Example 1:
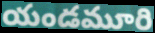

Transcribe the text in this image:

యండమూరి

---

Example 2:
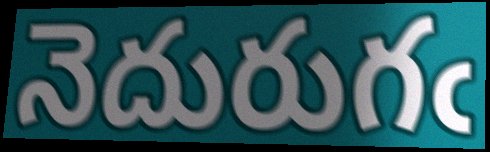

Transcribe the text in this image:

నెదురుగఁ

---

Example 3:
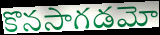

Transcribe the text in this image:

కొనసాగడమో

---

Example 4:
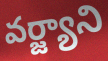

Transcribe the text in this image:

వర్జ్యాని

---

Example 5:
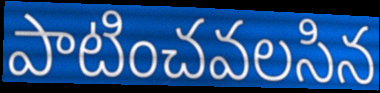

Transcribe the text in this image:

పాటించవలసిన